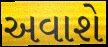
અવાશે